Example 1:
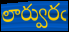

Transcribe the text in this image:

లార్వురఁ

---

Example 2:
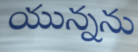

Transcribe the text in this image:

యున్నను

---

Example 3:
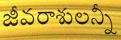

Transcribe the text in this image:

జీవరాశులన్నీ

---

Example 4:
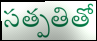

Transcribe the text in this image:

సత్పతితో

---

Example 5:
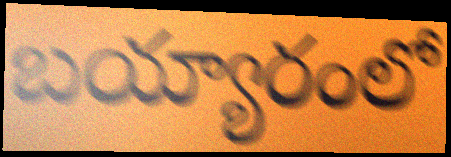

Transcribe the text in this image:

బయ్యారంలో